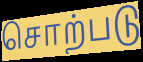
சொற்படு